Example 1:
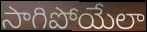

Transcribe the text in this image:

సాగిపోయేలా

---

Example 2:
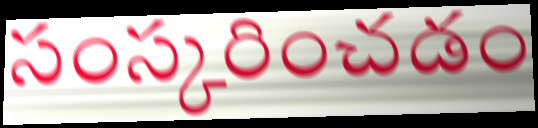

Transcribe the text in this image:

సంస్కరించడం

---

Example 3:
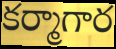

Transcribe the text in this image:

కర్మాగార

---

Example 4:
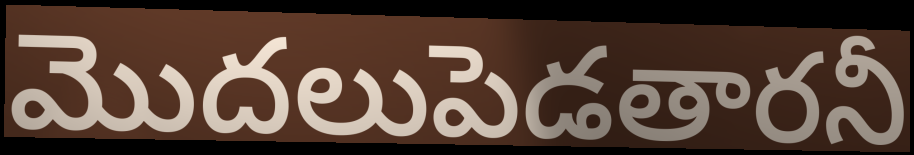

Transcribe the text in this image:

మొదలుపెడతారనీ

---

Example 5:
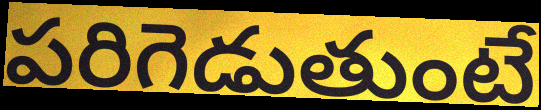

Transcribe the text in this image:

పరిగెడుతుంటే